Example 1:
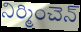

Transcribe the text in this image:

నిర్మించెన్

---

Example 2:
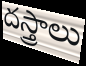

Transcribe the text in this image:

దస్త్రాలు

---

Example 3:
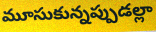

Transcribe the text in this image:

మూసుకున్నప్పుడల్లా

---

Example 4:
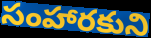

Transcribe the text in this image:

సంహారకుని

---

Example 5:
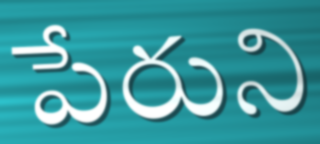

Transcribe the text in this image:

పేరుని